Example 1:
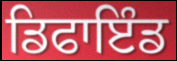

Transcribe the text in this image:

ਡਿਫਾਇੰਡ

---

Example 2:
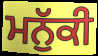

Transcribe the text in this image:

ਮਨੁੱਕੀ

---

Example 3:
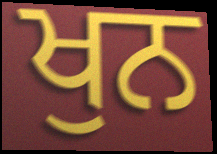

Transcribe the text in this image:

ਖੁਨ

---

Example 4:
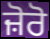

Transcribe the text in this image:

ਜ਼ੋਰੋ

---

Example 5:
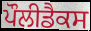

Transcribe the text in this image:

ਪੌਲੀਡੈਕਸ